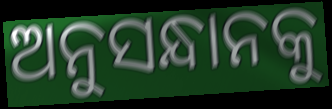
ଅନୁସନ୍ଧାନକୁ